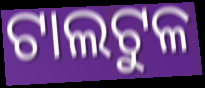
ଟାଲଟୁଳ